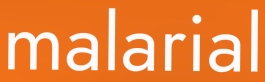
malarial